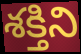
శక్తిని